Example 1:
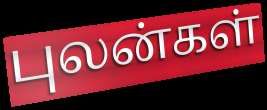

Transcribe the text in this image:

புலன்கள்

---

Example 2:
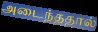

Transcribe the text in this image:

அடைந்ததால்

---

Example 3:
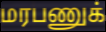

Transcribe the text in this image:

மரபணுக்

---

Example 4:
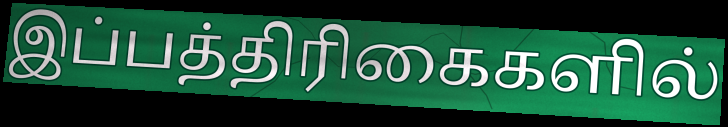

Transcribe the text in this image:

இப்பத்திரிகைகளில்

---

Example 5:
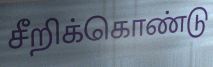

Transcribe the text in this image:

சீறிக்கொண்டு